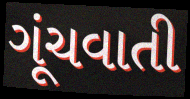
ગૂંચવાતી